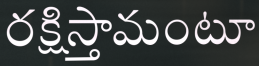
రక్షిస్తామంటూ